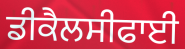
ਡੀਕੈਲਸੀਫਾਈ